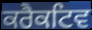
ਕਰੈਕਟਿਵ